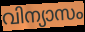
വിന്യാസം